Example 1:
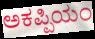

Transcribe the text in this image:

ಅಕಪ್ಪಿಯಂ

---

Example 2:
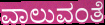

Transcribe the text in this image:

ವಾಲುವಂತೆ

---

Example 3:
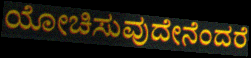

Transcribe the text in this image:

ಯೋಚಿಸುವುದೇನೆಂದರೆ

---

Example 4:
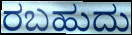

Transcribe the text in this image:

ರಬಹುದು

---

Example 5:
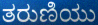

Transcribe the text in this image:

ತರುಣಿಯು